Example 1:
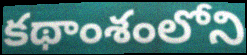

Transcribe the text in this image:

కథాంశంలోని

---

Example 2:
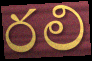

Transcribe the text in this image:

రలి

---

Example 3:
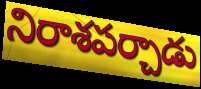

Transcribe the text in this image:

నిరాశపర్చాడు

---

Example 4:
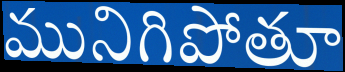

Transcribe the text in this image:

మునిగిపోతూ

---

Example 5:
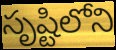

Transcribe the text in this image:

సృష్టిలోని